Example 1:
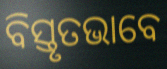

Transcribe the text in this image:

ବିସ୍ତୃତଭାବେ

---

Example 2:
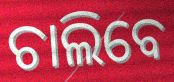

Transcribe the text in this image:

ଚାଲିବେ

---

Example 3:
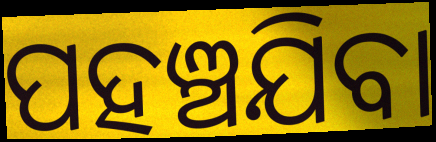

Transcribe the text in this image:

ପହଞ୍ଚଯିବା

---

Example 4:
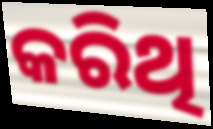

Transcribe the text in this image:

କରିଥି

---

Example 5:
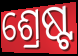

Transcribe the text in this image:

ଶ୍ରେଷ୍ଟ